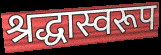
श्रद्धास्वरूप